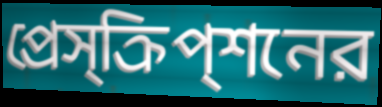
প্রেস্‌ক্রিপ্‌শনের